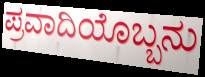
ಪ್ರವಾದಿಯೊಬ್ಬನು